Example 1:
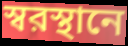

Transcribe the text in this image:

স্বরস্থানে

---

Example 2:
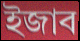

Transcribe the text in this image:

ইজাব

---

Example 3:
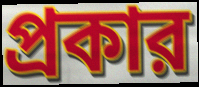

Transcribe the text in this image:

প্রকার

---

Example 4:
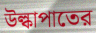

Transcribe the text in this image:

উল্কাপাতের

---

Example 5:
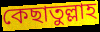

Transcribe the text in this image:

কেছাতুল্লাহ